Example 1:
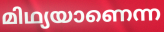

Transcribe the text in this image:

മിഥ്യയാണെന്ന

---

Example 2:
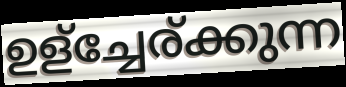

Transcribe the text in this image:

ഉള്ച്ചേര്ക്കുന്ന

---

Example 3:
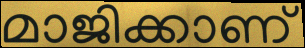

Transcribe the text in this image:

മാജിക്കാണ്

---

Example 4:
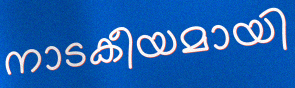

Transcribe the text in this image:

നാടകീയമായി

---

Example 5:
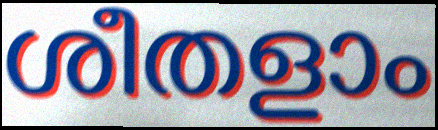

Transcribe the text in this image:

ശീതളാം